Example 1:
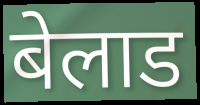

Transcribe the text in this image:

बेलाड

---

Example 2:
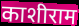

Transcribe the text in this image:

काशीराम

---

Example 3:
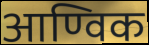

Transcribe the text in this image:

आण्विक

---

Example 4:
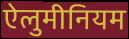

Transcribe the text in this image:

ऐलुमीनियम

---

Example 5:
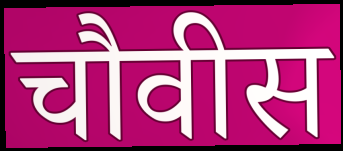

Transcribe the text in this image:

चौवीस